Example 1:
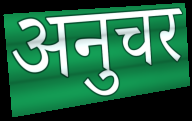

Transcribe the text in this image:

अनुचर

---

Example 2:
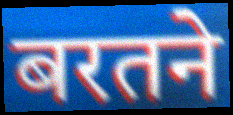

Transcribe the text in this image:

बरतने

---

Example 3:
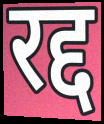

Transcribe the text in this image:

रद्द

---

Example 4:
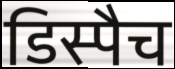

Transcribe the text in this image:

डिस्पैच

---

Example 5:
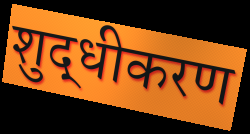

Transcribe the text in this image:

शुद्धीकरण